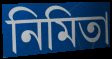
নিমিতা